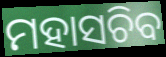
ମହାସଚିବ